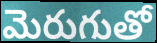
మెరుగుతో